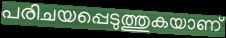
പരിചയപ്പെടുത്തുകയാണ്